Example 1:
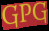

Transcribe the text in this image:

GPG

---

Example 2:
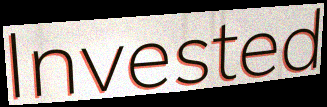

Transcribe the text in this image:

Invested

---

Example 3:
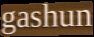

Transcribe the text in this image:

gashun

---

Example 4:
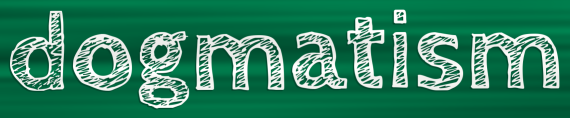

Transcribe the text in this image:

dogmatism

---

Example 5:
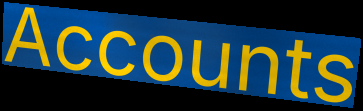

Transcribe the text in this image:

Accounts